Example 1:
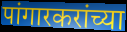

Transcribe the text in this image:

पांगारकरांच्या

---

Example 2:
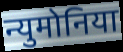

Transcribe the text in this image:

न्युमोनिया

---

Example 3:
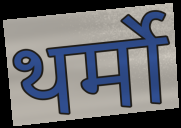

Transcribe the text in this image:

थर्मो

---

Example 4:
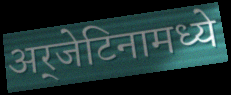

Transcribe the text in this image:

अर्जेटिनामध्ये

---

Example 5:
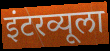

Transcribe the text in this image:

इंटरव्यूला